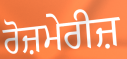
ਰੋਜ਼ਮੇਰੀਜ਼